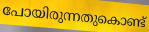
പോയിരുന്നതുകൊണ്ട്